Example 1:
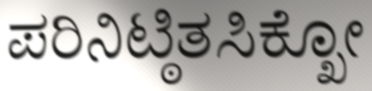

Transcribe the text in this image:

ಪರಿನಿಟ್ಠಿತಸಿಕ್ಖೋ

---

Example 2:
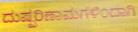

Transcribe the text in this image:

ದುಷ್ಪರಿಣಾಮಗಳಿಂದಾಗಿ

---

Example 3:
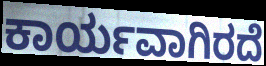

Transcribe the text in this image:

ಕಾರ್ಯವಾಗಿರದೆ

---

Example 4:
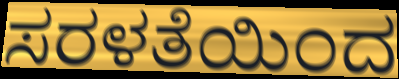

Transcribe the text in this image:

ಸರಳತೆಯಿಂದ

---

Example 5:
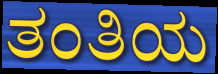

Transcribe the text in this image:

ತಂತಿಯ